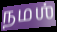
நமஶ்